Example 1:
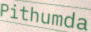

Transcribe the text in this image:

Pithumda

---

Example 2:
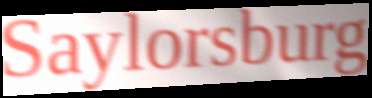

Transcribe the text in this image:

Saylorsburg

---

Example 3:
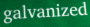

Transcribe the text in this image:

galvanized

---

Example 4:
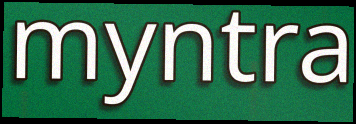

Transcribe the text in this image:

myntra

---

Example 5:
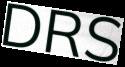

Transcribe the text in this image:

DRS